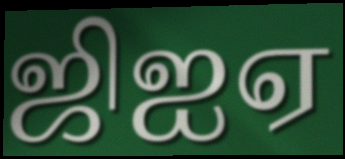
ஜிஐஏ